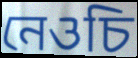
নেওচি